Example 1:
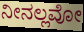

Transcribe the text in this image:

ನೀನಲ್ಲವೋ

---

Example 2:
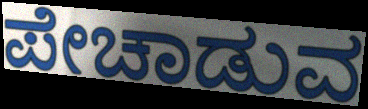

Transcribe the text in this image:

ಪೇಚಾಡುವ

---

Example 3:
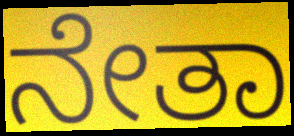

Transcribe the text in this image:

ನೇತಾ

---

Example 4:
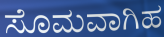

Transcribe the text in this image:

ಸೊಮವಾಗಿಹ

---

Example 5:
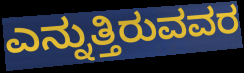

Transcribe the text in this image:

ಎನ್ನುತ್ತಿರುವವರ